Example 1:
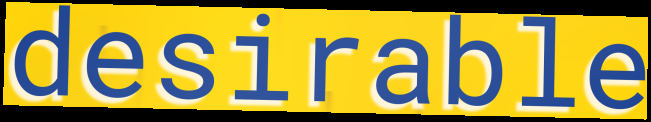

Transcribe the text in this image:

desirable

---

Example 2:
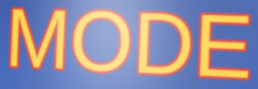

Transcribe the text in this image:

MODE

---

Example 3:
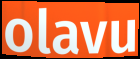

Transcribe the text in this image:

olavu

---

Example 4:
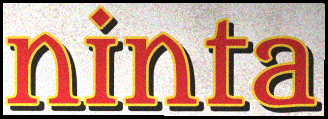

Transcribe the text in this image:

ninta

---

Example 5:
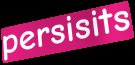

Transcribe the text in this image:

persisits